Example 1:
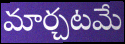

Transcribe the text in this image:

మార్చటమే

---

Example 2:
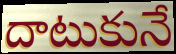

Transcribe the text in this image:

దాటుకునే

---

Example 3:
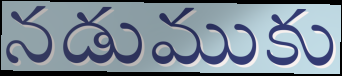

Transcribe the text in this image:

నడుముకు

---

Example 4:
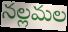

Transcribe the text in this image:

నల్లమల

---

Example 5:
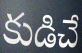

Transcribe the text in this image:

కుడిచే